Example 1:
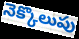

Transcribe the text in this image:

నెక్కొలుపు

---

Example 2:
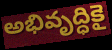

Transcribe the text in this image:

అభివృద్ధికై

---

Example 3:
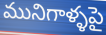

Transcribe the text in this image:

మునిగాళ్ళపై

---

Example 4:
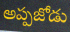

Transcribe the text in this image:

అప్పజోడు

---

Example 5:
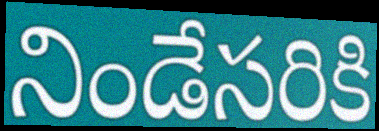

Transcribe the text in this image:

నిండేసరికి